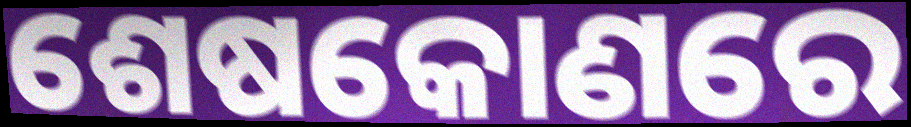
ଶେଷକୋଣରେ